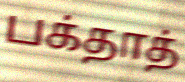
பக்தாத்